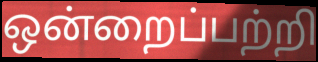
ஒன்றைப்பற்றி